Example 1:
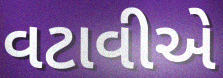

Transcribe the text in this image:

વટાવીએ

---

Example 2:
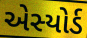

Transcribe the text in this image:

એસ્યોર્ડ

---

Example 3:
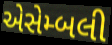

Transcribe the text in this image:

એસેમ્બલી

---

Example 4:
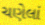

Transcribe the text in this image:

ચણેલાં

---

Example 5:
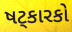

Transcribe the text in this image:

ષટ્કારકો